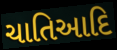
ચાતિઆદિ